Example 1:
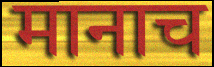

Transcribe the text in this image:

मानाच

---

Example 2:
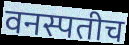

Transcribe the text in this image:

वनस्पतीच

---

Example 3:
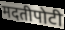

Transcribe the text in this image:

मदतीपोटी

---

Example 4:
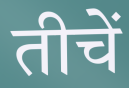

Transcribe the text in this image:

तीचें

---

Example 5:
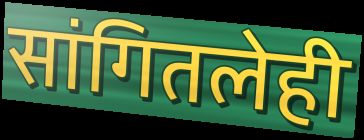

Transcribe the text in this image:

सांगितलेही